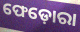
ଫେଡ଼ୋରା